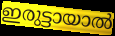
ഇരുട്ടായാൽ